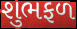
શુભફળ